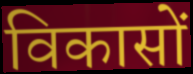
विकासों